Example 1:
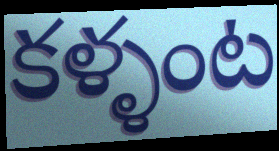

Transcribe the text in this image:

కళ్ళంట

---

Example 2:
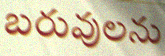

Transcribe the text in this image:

బరువులను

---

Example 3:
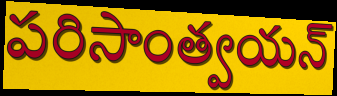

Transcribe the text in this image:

పరిసాంత్వయన్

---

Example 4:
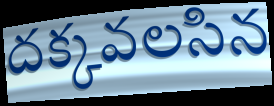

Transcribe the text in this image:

దక్కవలసిన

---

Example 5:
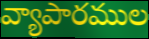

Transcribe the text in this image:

వ్యాపారముల